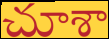
చూశా